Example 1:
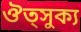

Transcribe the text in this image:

ঔত্সুক্য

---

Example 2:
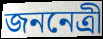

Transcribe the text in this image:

জননেত্রী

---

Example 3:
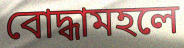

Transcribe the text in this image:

বোদ্ধামহলে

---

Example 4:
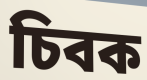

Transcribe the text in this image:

চিবক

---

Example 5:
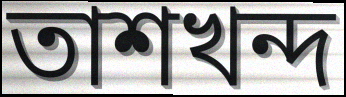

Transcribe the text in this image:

তাশখন্দ